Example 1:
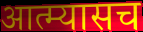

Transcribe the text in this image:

आत्म्यासच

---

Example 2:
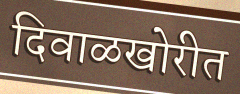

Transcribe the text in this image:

दिवाळखोरीत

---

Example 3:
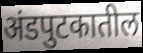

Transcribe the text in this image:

अंडपुटकातील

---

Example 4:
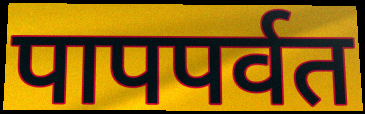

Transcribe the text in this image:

पापपर्वत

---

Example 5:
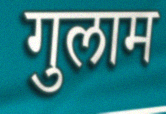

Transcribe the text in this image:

गुलाम